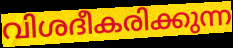
വിശദീകരിക്കുന്ന